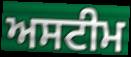
ਅਸਟੀਮ